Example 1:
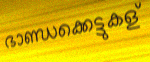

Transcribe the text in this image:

ഭാണ്ഡക്കെട്ടുകള്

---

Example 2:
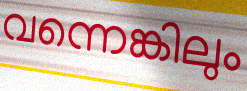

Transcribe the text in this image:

വന്നെങ്കിലും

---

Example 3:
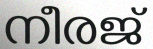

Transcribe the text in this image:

നീരജ്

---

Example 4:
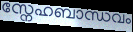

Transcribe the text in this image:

സ്നേഹബാന്ധവം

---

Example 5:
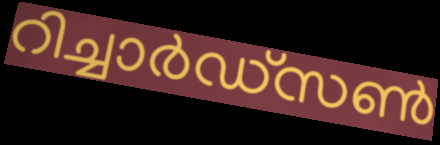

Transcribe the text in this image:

റിച്ചാർഡ്സൺ